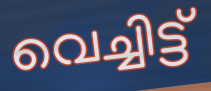
വെച്ചിട്ട്